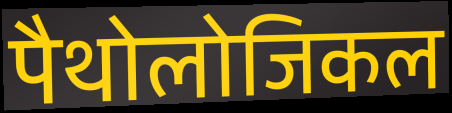
पैथोलोजिकल